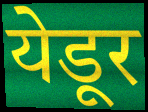
येडूर